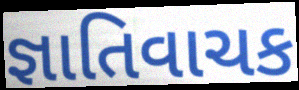
જ્ઞાતિવાચક